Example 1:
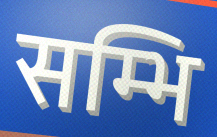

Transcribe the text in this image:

सम्भि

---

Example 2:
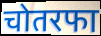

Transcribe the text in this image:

चोतरफा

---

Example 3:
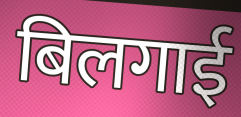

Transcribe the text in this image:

बिलगाई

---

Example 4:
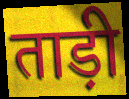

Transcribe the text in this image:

ताड़ी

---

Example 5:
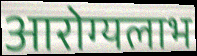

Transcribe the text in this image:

आरोग्यलाभ